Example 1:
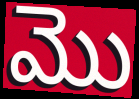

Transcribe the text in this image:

మొ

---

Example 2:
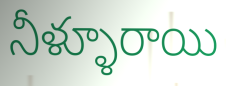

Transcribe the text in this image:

నీళ్ళూరాయి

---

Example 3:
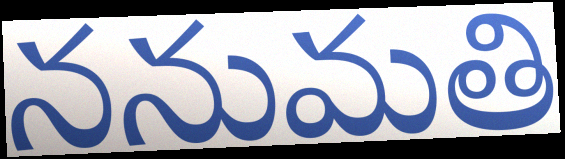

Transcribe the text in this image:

ననుమతి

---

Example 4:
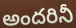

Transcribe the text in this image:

అందరినీ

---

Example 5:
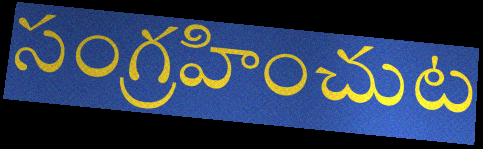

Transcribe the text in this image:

సంగ్రహించుట